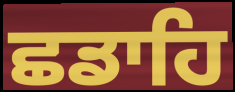
ਛਡਾਹਿ